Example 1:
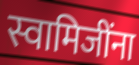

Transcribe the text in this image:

स्वामिजींना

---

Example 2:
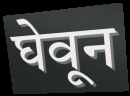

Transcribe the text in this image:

घेवून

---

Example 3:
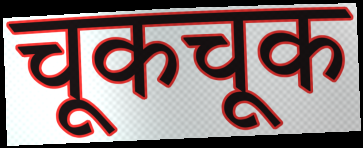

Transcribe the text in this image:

चूकचूक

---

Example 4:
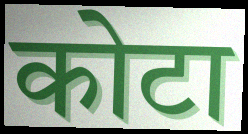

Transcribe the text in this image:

कोटा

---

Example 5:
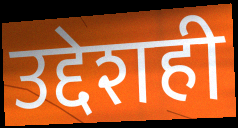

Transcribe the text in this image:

उद्देशही